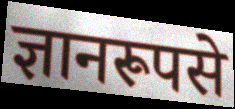
ज्ञानरूपसे